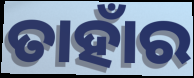
ତାହାଁର